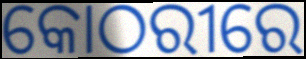
କୋଠରୀରେ